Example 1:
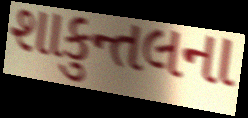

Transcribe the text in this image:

શાકુન્તલના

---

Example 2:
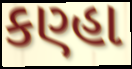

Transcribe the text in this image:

કણ્હા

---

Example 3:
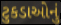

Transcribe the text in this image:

ટુકડાઓનું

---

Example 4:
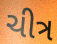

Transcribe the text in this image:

ચીત્ર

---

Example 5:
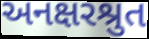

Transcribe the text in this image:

અનક્ષરશ્રુત